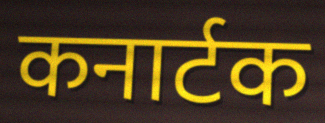
कनार्टक